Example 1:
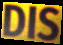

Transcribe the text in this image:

DIS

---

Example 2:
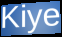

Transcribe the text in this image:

Kiye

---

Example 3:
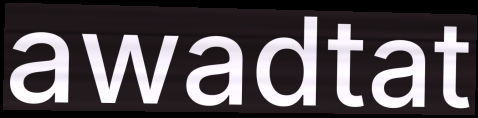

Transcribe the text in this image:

awadtat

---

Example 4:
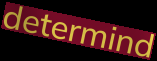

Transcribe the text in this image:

determind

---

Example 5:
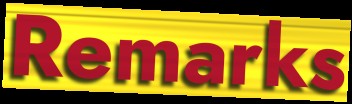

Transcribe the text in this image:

Remarks